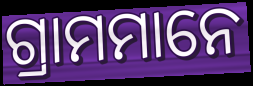
ଗ୍ରାମମାନେ